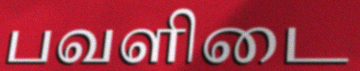
பவளிடை